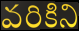
వరికిని